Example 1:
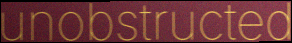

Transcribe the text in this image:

unobstructed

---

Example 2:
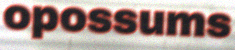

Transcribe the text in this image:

opossums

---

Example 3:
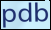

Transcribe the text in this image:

pdb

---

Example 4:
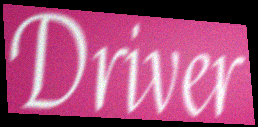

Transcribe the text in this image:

Driver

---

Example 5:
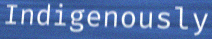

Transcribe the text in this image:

Indigenously